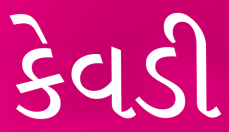
કેવડી